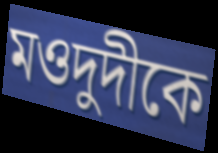
মওদুদীকে